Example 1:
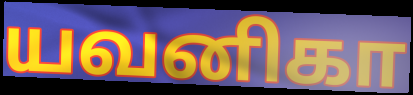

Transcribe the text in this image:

யவனிகா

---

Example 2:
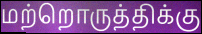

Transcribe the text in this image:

மற்றொருத்திக்கு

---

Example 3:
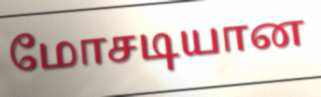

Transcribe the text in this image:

மோசடியான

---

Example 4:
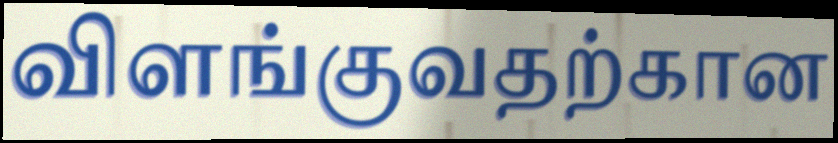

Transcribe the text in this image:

விளங்குவதற்கான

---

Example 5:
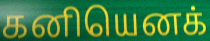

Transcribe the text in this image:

கனியெனக்